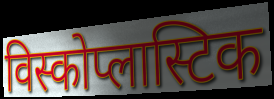
विस्कोप्लास्टिक